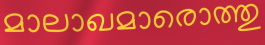
മാലാഖമാരൊത്തു